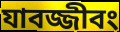
যাবজ্জীবং